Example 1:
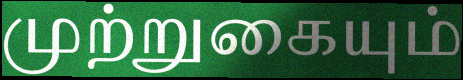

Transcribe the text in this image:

முற்றுகையும்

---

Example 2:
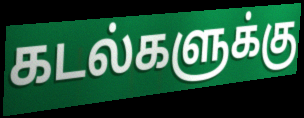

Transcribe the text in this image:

கடல்களுக்கு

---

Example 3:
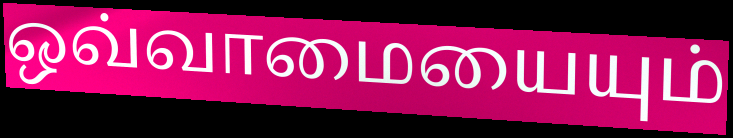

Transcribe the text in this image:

ஒவ்வாமையையும்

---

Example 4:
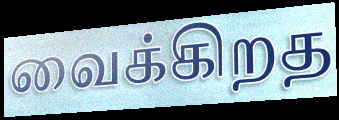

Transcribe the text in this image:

வைக்கிறத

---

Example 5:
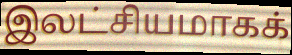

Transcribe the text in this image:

இலட்சியமாகக்